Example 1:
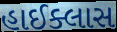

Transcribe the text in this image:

હાઈક્લાસ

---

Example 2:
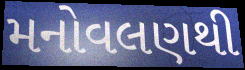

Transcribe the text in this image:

મનોવલણથી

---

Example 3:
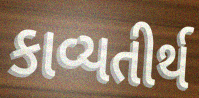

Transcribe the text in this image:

કાવ્યતીર્થ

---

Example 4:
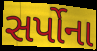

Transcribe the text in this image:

સર્પોના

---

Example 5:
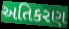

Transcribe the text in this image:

અતિકરણ